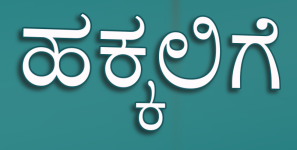
ಹಕ್ಕಲಿಗೆ